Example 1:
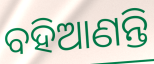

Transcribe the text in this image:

ବହିଆଣନ୍ତି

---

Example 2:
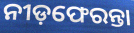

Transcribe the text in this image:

ନୀଡ଼ଫେରନ୍ତା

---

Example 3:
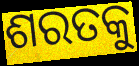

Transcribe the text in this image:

ଶରତକୁ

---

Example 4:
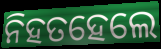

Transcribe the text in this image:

ନିହତହେଲେ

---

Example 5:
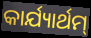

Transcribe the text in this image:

କାର୍ଯ୍ୟାର୍ଥମ୍